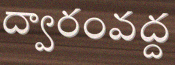
ద్వారంవద్ద